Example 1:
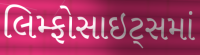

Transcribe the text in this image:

લિમ્ફોસાઇટ્સમાં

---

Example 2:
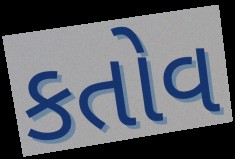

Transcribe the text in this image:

કતોવ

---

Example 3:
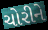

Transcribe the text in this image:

ચોરીને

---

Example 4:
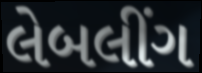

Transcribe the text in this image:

લેબલીંગ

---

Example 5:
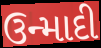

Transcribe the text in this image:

ઉન્માદી